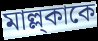
মাল্ল্কাকে